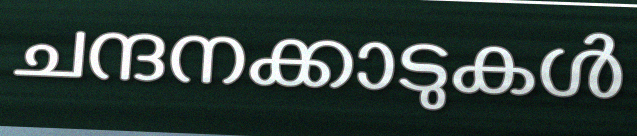
ചന്ദനക്കാടുകൾ